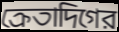
ক্রেতাদিগের